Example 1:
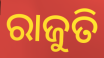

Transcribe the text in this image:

ରାଜୁତି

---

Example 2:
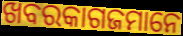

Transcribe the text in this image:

ଖବରକାଗଜମାନେ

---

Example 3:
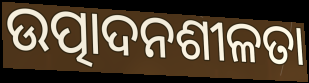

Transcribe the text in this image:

ଉତ୍ପାଦନଶୀଳତା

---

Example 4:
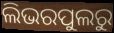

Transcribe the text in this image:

ଲିଭରପୁଲରୁ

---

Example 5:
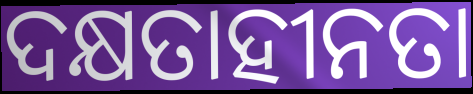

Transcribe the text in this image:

ଦକ୍ଷତାହୀନତା